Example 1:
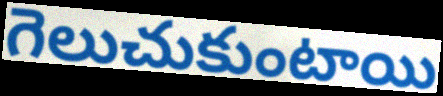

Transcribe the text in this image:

గెలుచుకుంటాయి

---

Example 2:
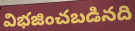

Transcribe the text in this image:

విభజించబడినది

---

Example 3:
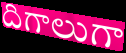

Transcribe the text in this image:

దిగాలుగా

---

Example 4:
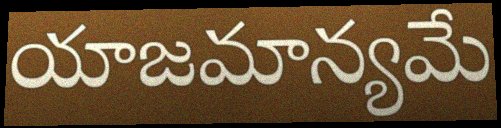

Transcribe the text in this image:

యాజమాన్యమే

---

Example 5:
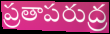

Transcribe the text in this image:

ప్రతాపరుద్ర